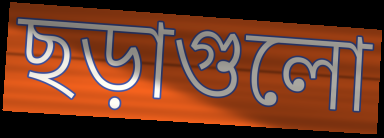
ছড়াগুলো